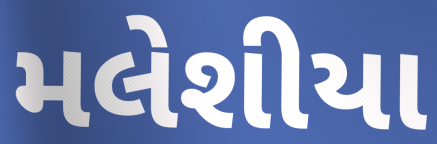
મલેશીયા